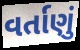
વર્તાણું